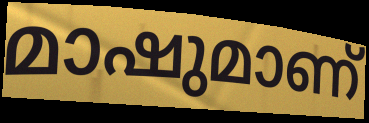
മാഷുമാണ്